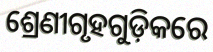
ଶ୍ରେଣୀଗୃହଗୁଡ଼ିକରେ